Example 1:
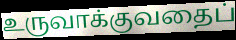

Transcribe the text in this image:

உருவாக்குவதைப்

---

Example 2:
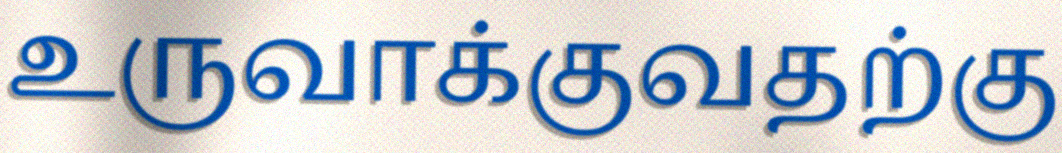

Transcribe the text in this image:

உருவாக்குவதற்கு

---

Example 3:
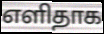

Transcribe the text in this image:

எளிதாக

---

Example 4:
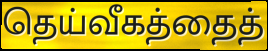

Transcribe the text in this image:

தெய்வீகத்தைத்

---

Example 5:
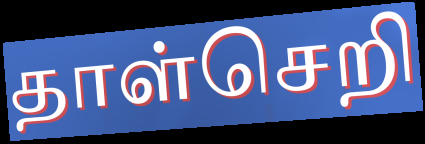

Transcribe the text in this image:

தாள்செறி